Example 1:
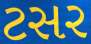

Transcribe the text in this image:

ટસર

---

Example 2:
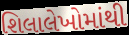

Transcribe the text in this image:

શિલાલેખોમાંથી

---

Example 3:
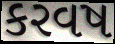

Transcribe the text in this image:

કરવષ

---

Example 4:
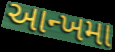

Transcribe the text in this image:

આન્ખમા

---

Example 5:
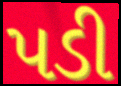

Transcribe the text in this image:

પડી